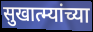
सुखात्म्यांच्या